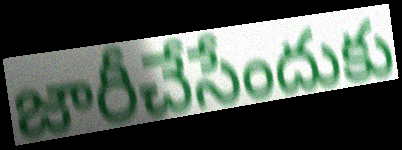
జారీచేసేందుకు